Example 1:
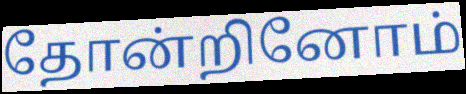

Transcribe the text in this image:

தோன்றினோம்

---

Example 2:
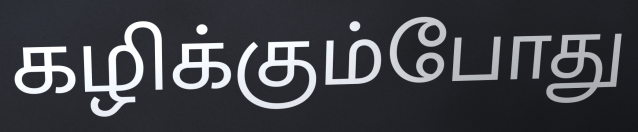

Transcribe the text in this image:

கழிக்கும்போது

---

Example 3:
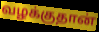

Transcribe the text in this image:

வழக்குதான்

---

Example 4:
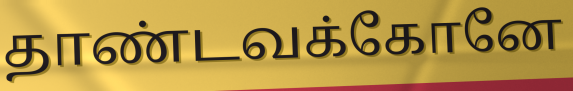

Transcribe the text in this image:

தாண்டவக்கோனே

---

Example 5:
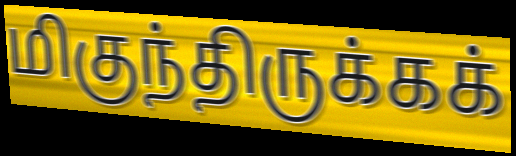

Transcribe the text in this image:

மிகுந்திருக்கக்